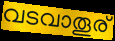
വടവാതൂര്